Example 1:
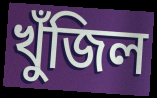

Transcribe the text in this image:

খুঁজিল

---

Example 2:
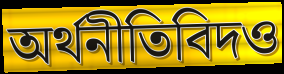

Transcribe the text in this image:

অর্থনীতিবিদও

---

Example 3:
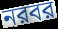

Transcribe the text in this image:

নরবর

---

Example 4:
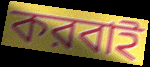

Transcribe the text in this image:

করবাই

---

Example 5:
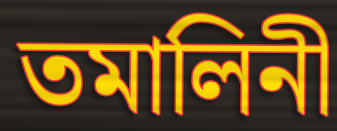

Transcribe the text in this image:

তমালিনী